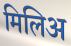
मिलिअ